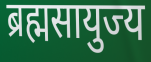
ब्रह्मसायुज्य